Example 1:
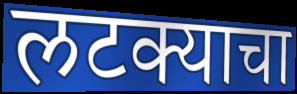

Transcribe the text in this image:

लटक्याचा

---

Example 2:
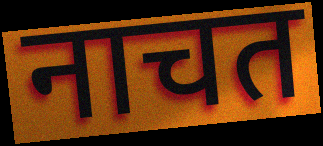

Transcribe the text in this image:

नाचत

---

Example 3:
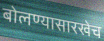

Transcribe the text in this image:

बोलण्यासारखेच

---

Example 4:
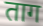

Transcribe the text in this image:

ताग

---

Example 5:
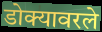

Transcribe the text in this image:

डोक्यावरले